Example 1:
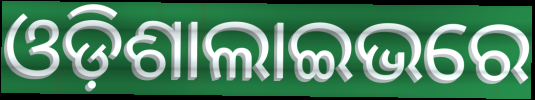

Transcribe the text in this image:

ଓଡ଼ିଶାଲାଇଭରେ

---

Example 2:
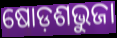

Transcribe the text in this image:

ଷୋଡ଼ଶଭୁଜା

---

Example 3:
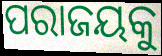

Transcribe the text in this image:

ପରାଜୟକୁ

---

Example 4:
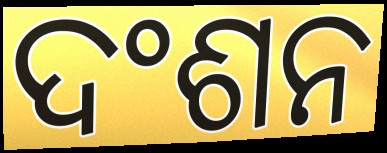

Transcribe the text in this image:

ଦଂଶନ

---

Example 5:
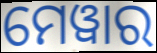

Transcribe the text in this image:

ମେୱାର